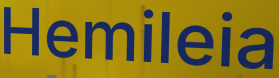
Hemileia